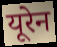
यूरेन